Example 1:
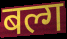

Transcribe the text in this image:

बल्ग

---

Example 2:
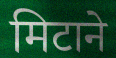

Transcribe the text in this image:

मिटाने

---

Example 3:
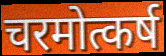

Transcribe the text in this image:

चरमोत्कर्ष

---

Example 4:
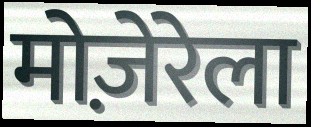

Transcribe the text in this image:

मोज़ेरेला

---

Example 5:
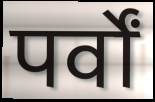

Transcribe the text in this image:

पर्वों